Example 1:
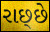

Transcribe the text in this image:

રાછ્છે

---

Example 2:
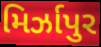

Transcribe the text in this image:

મિર્ઝાપુર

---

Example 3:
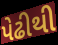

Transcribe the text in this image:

પેઢીથી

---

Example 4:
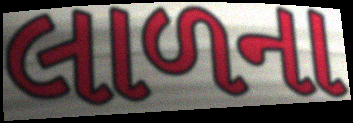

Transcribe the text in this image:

લાળના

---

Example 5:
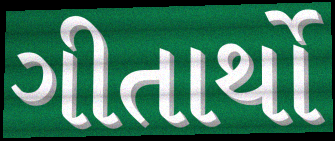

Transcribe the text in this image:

ગીતાર્થો